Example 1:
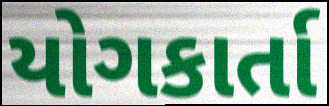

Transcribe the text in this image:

યોગકાર્તા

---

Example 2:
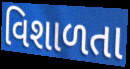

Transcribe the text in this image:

વિશાળતા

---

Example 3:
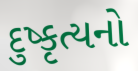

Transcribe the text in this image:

દુષ્કૃત્યનો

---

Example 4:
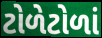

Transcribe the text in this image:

ટોળેટોળાં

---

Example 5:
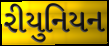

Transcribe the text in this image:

રીયુનિયન